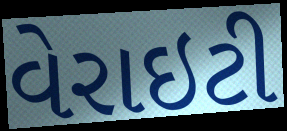
વેરાઇટી